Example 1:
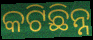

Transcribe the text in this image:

କଟିଛିନ୍ନ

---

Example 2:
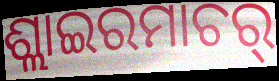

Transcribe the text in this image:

ଶ୍ଲାଇରମାଚର୍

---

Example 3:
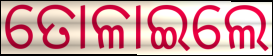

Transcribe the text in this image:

ତୋଳାଇଲେ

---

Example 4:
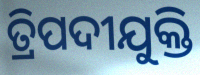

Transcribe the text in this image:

ତ୍ରିପଦୀଯୁକ୍ତି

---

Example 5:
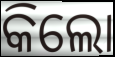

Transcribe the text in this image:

କିଲୋ